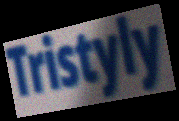
Tristyly